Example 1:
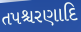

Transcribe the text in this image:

તપશ્ચરણાદિ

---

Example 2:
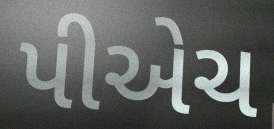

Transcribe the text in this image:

પીએચ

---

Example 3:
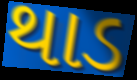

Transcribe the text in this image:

થાડ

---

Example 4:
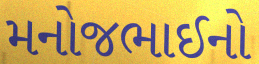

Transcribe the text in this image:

મનોજભાઈનો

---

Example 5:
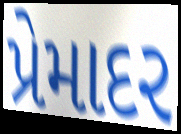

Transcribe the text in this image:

પ્રેમાદર